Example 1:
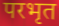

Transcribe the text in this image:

परभृत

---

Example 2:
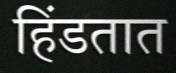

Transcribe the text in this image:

हिंडतात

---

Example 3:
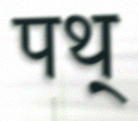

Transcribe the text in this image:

पथ्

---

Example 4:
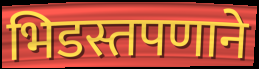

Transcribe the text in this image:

भिडस्तपणाने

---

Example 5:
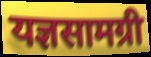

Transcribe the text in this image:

यज्ञसामग्री